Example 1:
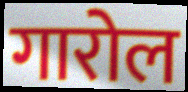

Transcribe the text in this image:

गारोल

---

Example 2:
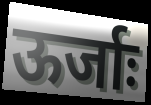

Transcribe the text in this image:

ऊर्जाः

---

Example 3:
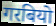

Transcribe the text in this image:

गरबियो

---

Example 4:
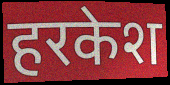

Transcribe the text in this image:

हरकेश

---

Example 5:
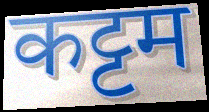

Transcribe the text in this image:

कट्टम